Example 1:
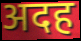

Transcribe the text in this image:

अदह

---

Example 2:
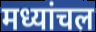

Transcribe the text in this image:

मध्यांचल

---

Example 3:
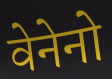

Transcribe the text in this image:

वेनेनो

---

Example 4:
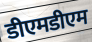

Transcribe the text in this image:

डीएमडीएम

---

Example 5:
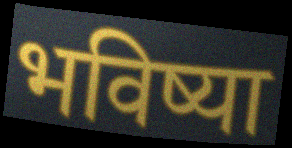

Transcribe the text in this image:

भविष्या